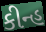
કીન્હ